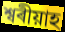
শ্বৰীয়াহ